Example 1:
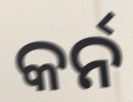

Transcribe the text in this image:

କର୍ନ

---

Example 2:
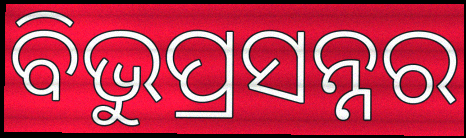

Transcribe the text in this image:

ବିଭୁପ୍ରସନ୍ନର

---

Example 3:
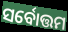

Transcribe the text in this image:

ସର୍ବୋତ୍ତମ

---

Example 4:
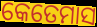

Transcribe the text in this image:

କେତେମାସ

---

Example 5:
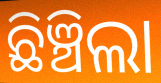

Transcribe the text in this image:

ଛିଞ୍ଚିଲା